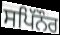
ਸਪਿੱਨੌਰ